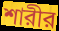
শারীর